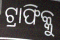
ଟ୍ରାଫିକ୍କୁ